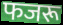
फजरू